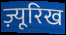
ज़्यूरिख